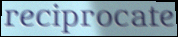
reciprocate